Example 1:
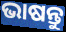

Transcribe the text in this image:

ଭାଷନ୍ତୁ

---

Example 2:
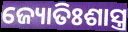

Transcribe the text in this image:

ଜ୍ୟୋତିଃଶାସ୍ତ୍ର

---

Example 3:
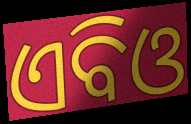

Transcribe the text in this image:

ଏବିଓ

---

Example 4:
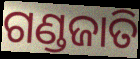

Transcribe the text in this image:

ଗଣ୍ଡଜାତି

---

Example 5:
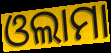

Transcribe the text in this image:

ଓଲାମା